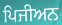
ਪਿਜੀਅਨ